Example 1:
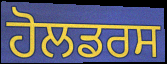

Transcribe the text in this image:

ਹੋਲਡਰਸ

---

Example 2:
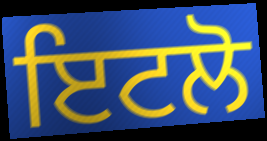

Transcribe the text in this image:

ਇਟਲੋ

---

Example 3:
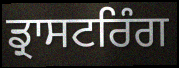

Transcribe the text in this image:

ਡ੍ਰਾਸਟਰਿੰਗ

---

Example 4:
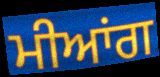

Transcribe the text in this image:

ਮੀਆਂਗ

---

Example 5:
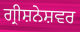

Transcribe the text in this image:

ਗ੍ਰੀਸ਼ਨੇਸ਼ਵਰ